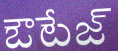
ఔటేజ్